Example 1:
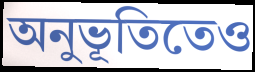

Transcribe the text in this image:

অনুভূতিতেও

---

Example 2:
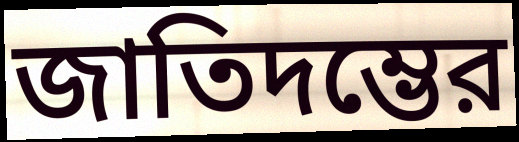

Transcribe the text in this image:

জাতিদম্ভের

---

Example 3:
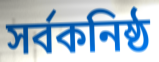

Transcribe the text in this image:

সর্বকনিষ্ঠ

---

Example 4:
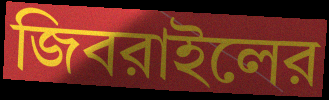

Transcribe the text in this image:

জিবরাইলের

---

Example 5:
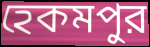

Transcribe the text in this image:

হেকমপুর